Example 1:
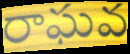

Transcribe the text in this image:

రాఘవ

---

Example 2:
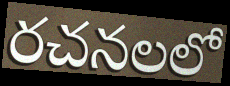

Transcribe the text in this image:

రచనలలో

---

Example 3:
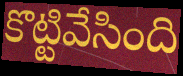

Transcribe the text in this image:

కొట్టివేసింది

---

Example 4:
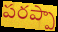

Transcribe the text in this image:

పరప్పా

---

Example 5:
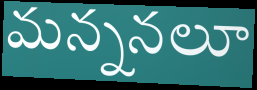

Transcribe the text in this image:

మన్ననలూ